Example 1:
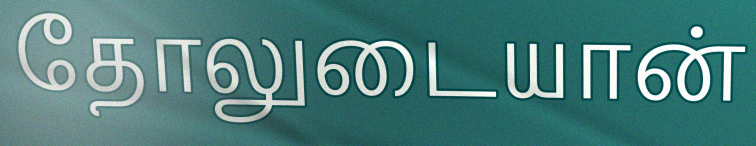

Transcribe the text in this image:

தோலுடையான்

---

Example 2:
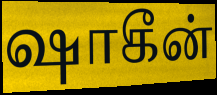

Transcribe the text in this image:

ஷாகீன்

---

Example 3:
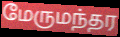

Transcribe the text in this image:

மேருமந்தர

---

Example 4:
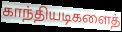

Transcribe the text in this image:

காந்தியடிகளைத்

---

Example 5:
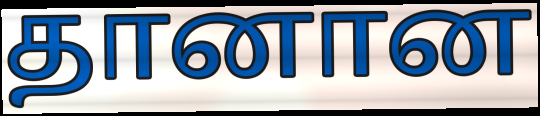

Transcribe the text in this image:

தானான